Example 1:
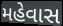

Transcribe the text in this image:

મહેવાસ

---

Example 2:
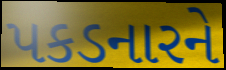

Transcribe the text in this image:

પકડનારને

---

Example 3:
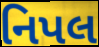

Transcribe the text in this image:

નિપલ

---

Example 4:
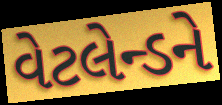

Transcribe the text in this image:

વેટલેન્ડને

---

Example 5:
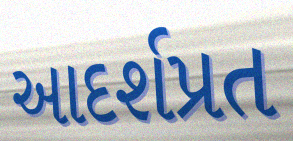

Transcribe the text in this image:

આદર્શપ્રત